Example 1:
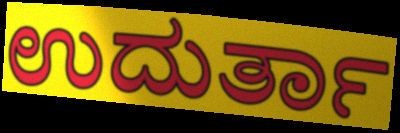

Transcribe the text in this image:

ಉದುರ್ತಾ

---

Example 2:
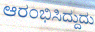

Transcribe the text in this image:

ಆರಂಭಿಸಿದ್ದುದು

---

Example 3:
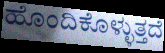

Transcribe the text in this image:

ಹೊಂದಿಕೊಳ್ಳುತ್ತದೆ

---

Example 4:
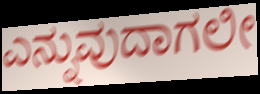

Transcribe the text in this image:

ಎನ್ನುವುದಾಗಲೀ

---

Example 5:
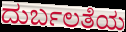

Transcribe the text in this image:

ದುರ್ಬಲತೆಯ